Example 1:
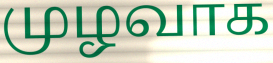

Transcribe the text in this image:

முழவாக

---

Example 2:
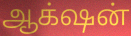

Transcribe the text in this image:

ஆக்‌ஷன்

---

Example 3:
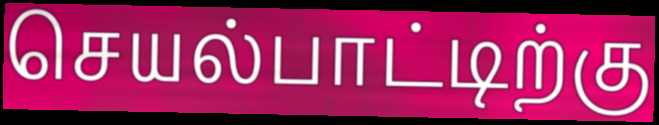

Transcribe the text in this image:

செயல்பாட்டிற்கு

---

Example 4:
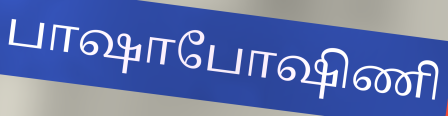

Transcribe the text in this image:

பாஷாபோஷிணி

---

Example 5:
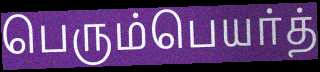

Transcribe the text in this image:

பெரும்பெயர்த்